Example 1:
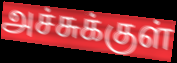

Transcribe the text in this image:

அச்சுக்குள்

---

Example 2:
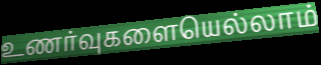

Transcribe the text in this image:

உணர்வுகளையெல்லாம்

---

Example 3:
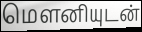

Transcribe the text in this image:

மௌனியுடன்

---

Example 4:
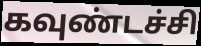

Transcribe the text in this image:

கவுண்டச்சி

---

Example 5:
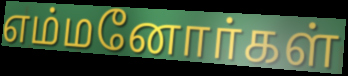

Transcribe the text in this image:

எம்மனோர்கள்